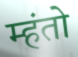
म्हंतो